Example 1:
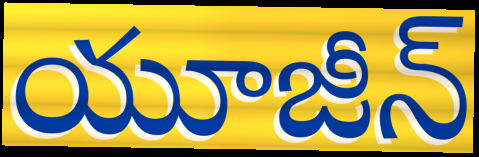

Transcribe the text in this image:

యూజీన్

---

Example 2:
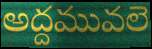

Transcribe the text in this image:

అద్దమువలె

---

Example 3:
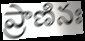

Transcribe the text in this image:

ప్రాణినః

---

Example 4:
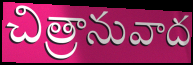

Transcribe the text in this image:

చిత్రానువాద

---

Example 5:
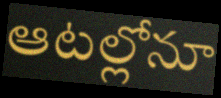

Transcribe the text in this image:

ఆటల్లోనూ